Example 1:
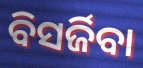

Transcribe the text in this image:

ବିସର୍ଜିବା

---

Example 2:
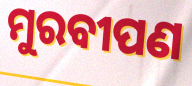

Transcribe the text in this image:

ମୁରବୀପଣ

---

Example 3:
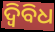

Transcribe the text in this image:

ଦ୍ୱିବିଧ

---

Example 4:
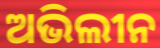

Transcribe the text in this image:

ଅଭିଲୀନ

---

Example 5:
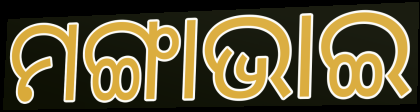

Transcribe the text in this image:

ମଙ୍ଗାଭାଇ